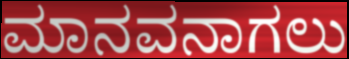
ಮಾನವನಾಗಲು